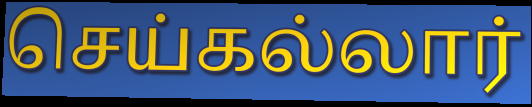
செய்கல்லார்